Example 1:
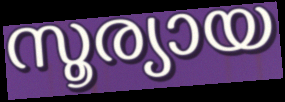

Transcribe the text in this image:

സൂര്യായ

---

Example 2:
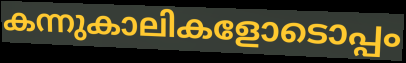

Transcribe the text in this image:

കന്നുകാലികളോടൊപ്പം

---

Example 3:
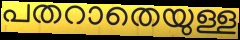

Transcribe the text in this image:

പതറാതെയുള്ള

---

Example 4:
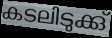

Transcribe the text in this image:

കടലിടുക്കു്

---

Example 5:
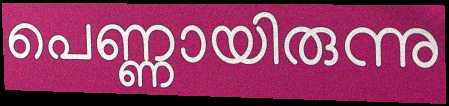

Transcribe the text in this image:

പെണ്ണായിരുന്നു